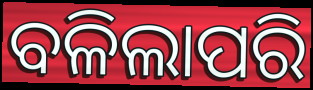
ବଳିଲାପରି